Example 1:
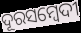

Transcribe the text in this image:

ଦୂରସମ୍ବେଦୀ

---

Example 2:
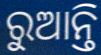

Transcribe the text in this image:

ରୁଆନ୍ତି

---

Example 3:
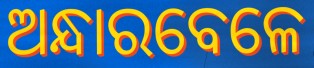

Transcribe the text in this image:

ଅନ୍ଧାରବେଳେ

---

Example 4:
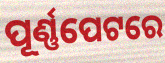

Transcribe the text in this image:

ପୂର୍ଣ୍ଣପେଟରେ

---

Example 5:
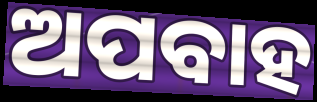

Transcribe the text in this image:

ଅପବାହ